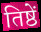
तिष्ठें